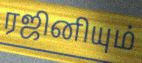
ரஜினியும்